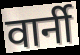
वार्नी